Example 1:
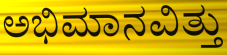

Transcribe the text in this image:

ಅಭಿಮಾನವಿತ್ತು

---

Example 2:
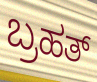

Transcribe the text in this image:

ಬ್ರಹತ್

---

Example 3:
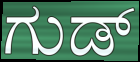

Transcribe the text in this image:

ಗುಡ್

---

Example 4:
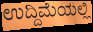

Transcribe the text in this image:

ಉದ್ದಿಮೆಯಲ್ಲಿ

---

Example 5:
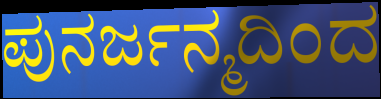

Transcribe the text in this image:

ಪುನರ್ಜನ್ಮದಿಂದ